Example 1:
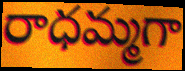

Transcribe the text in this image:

రాధమ్మగా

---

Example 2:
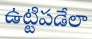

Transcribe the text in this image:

ఉట్టిపడేలా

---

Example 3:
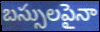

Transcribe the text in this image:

బస్సులపైనా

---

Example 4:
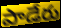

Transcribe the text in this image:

పాడేరు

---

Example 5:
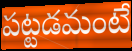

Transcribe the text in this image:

పట్టడమంటే